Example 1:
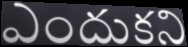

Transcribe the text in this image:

ఎందుకని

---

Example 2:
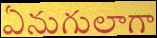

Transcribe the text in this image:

ఏనుగులాగా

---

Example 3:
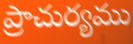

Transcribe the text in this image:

ప్రాచుర్యము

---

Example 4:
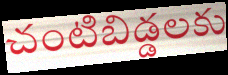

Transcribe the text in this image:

చంటిబిడ్డలకు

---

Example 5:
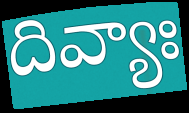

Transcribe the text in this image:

దివ్యాః